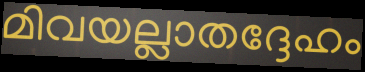
മിവയല്ലാതദ്ദേഹം